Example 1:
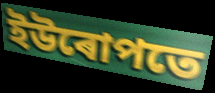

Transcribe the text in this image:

ইউৰোপতে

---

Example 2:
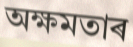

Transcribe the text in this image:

অক্ষমতাৰ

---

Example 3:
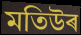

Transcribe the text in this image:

মতিউৰ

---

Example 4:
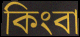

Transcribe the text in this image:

কিংবা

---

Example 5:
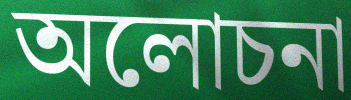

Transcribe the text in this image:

অলোচনা